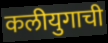
कलीयुगाची